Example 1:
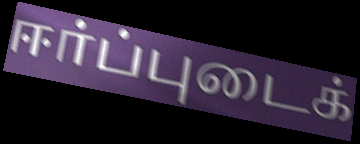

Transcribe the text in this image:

ஈர்ப்புடைக்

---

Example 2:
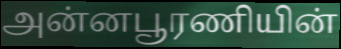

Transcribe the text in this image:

அன்னபூரணியின்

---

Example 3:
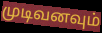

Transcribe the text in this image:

முடிவனவும்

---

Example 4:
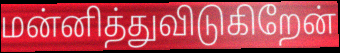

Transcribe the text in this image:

மன்னித்துவிடுகிறேன்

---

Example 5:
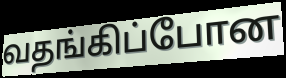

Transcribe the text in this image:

வதங்கிப்போன